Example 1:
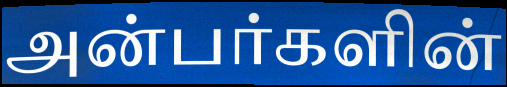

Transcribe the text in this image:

அன்பர்களின்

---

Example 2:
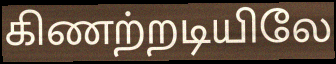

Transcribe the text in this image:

கிணற்றடியிலே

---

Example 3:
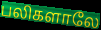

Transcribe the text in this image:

பலிகளாலே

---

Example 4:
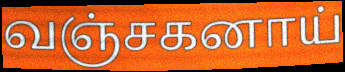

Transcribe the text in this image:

வஞ்சகனாய்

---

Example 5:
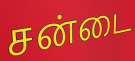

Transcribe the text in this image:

சன்டை